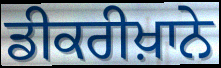
ਡੀਕਰੀਖ਼ਾਨੇ